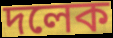
দলেক